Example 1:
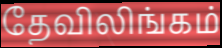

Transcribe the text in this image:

தேவிலிங்கம்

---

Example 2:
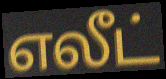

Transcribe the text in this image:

எலீட்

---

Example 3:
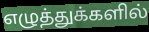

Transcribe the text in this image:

எழுத்துக்களில்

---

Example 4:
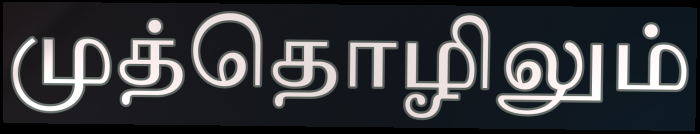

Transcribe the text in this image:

முத்தொழிலும்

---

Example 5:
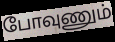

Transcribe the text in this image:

போவுணும்